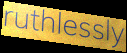
ruthlessly